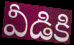
వీడికి